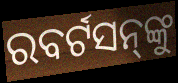
ରବର୍ଟସନ୍‌ଙ୍କୁ